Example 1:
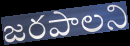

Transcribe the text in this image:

జరపాలని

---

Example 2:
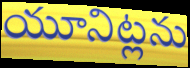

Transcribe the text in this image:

యూనిట్లను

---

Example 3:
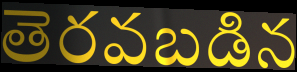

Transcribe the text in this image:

తెరవబడిన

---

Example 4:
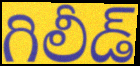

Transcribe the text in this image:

గిలీడ్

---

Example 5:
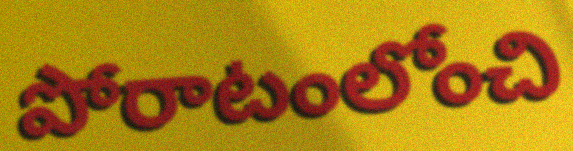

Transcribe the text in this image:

పోరాటంలోంచి